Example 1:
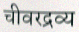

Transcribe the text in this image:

चीवरद्रव्य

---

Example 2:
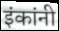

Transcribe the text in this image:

इंकांनी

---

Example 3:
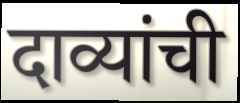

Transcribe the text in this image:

दाव्यांची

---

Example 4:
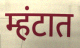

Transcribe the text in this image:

म्हंटात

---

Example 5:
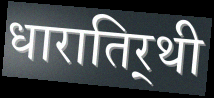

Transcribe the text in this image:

धारातिर्थी